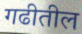
गढीतील